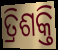
ତ୍ରିଶକ୍ତି